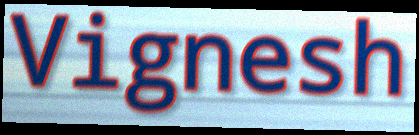
Vignesh